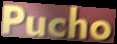
Pucho